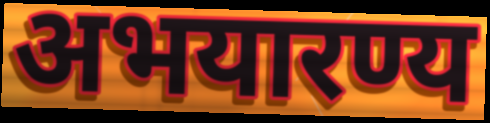
अभयारण्य